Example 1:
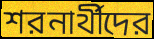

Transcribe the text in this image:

শরনার্থীদের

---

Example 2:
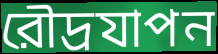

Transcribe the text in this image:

রৌদ্রযাপন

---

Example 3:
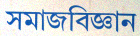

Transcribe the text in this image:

সমাজবিজ্ঞান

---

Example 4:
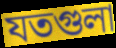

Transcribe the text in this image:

যতগুলা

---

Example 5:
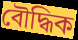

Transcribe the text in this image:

বৌদ্ধিক